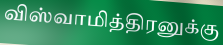
விஸ்வாமித்திரனுக்கு